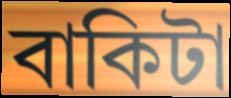
বাকিটা